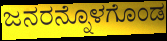
ಜನರನ್ನೊಳಗೊಂಡ